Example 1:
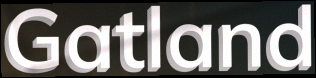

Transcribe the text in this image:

Gatland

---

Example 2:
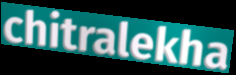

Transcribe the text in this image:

chitralekha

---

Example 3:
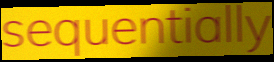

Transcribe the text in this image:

sequentially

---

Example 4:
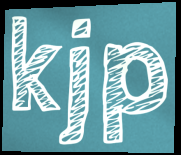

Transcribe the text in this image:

kjp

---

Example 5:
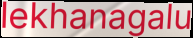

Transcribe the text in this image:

lekhanagalu